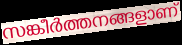
സങ്കീർത്തനങ്ങളാണ്